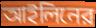
আইলিনের